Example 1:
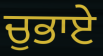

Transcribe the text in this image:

ਚੁਭਾਏ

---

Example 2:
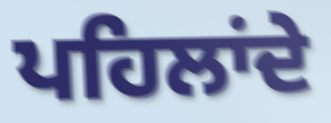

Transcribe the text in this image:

ਪਹਿਲਾਂਦੇ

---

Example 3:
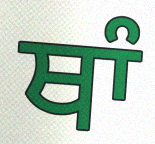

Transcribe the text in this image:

ਥਾੰ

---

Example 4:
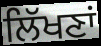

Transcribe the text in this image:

ਲਿੱਖਣਾਂ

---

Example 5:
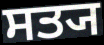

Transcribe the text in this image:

ਸਤ੍ਯ